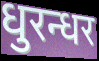
धुरन्धर